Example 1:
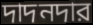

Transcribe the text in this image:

দাদনদার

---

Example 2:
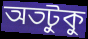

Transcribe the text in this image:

অতটুকু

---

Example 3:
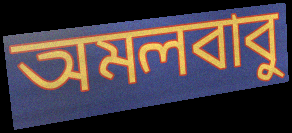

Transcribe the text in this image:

অমলবাবু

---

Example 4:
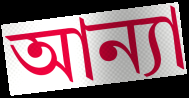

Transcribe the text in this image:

আন্যা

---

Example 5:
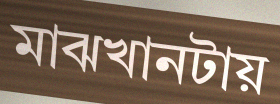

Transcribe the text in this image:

মাঝখানটায়